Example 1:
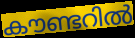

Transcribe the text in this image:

കൗണ്ടറിൽ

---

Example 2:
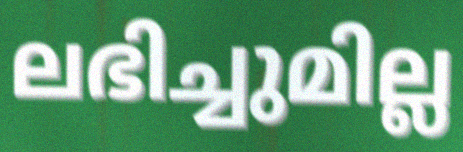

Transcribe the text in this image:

ലഭിച്ചുമില്ല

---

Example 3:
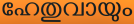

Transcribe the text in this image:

ഹേതുവായും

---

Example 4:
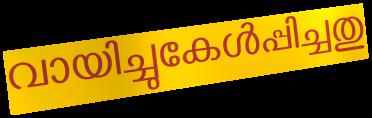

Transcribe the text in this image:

വായിച്ചുകേൾപ്പിച്ചതു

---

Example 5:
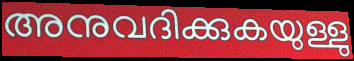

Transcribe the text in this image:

അനുവദിക്കുകയുള്ളു